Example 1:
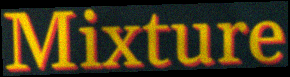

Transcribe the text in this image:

Mixture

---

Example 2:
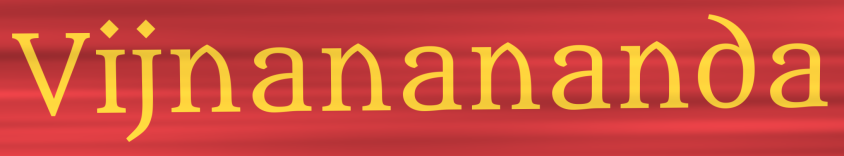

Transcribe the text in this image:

Vijnanananda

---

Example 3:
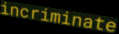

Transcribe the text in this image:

incriminate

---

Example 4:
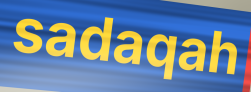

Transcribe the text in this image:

sadaqah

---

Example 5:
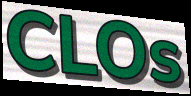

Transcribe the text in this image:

CLOs